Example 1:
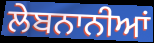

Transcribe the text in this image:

ਲੇਬਨਾਨੀਆਂ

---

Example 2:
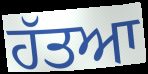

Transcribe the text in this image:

ਹੱਤਆ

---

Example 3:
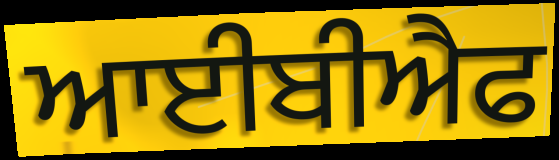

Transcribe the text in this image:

ਆਈਬੀਐਫ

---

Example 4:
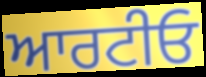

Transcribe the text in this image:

ਆਰਟੀਓ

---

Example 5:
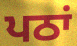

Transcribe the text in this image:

ਪਠਾਂ